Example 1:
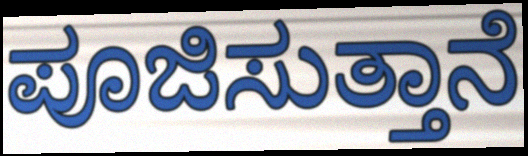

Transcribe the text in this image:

ಪೂಜಿಸುತ್ತಾನೆ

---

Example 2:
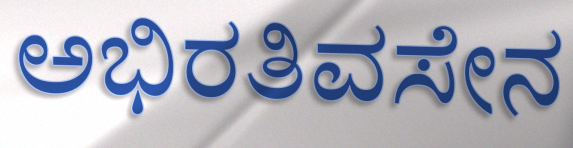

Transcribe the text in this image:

ಅಭಿರತಿವಸೇನ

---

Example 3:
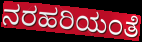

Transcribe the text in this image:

ನರಹರಿಯಂತೆ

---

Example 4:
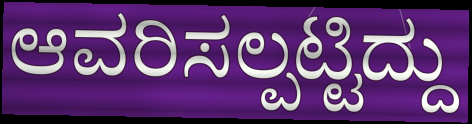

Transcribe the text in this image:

ಆವರಿಸಲ್ಪಟ್ಟಿದ್ದು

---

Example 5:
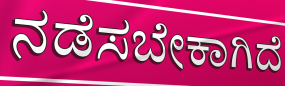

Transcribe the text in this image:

ನಡೆಸಬೇಕಾಗಿದೆ